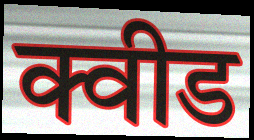
क्वीड